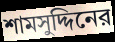
শামসুদ্দিনের